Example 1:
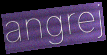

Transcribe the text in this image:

angrej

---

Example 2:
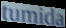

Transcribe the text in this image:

tumida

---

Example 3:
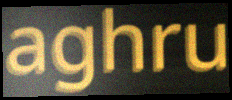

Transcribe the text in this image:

aghru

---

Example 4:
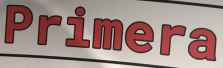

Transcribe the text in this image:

Primera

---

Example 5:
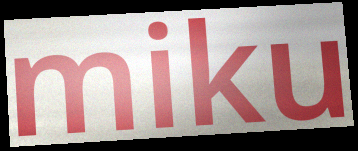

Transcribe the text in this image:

miku